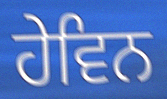
ਹੇਵਿਨ